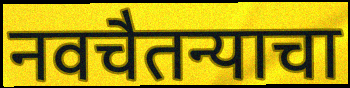
नवचैतन्याचा